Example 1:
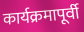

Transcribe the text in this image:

कार्यक्रमापूर्वी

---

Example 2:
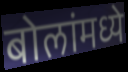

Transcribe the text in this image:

बोलांमध्ये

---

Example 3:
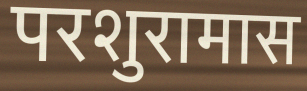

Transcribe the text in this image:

परशुरामास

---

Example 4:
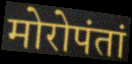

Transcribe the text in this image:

मोरोपंतां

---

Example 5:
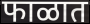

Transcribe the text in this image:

फाळात